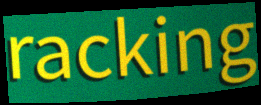
racking